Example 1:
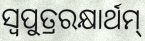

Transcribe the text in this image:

ସ୍ଵପୁତ୍ରରକ୍ଷାର୍ଥମ୍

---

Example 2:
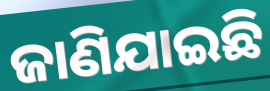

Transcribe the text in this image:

ଜାଣିଯାଇଛି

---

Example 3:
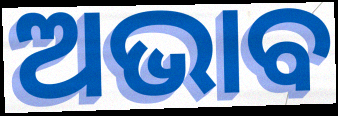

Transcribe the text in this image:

ଅଭାବ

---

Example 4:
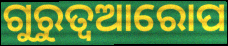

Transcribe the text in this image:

ଗୁରୁତ୍ଵଆରୋପ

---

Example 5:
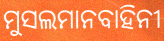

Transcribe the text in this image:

ମୁସଲମାନବାହିନୀ